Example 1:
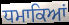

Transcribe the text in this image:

ਧਮਾਕਿਆਂ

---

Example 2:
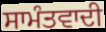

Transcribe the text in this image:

ਸਾਮੰਤਵਾਦੀ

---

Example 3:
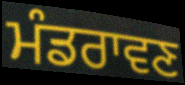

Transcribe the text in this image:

ਮੰਡਰਾਵਣ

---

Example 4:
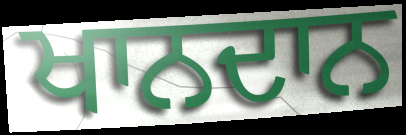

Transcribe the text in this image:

ਖਾਨਦਾਨ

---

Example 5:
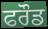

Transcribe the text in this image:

ਫਰੌਡ